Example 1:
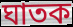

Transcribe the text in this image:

ঘাতক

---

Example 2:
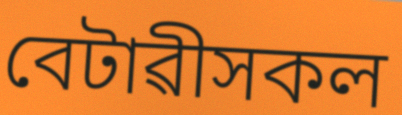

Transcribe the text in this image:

বেটাৱীসকল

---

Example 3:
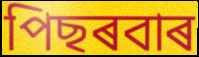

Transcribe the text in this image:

পিছৰবাৰ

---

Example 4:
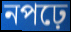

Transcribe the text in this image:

নপঢ়ে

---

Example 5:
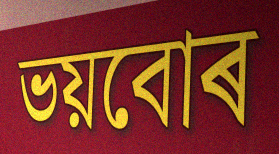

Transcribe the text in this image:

ভয়বোৰ